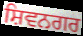
ਸ਼ਿਵਨਗਰ